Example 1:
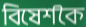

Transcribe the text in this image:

বিষেশকৈ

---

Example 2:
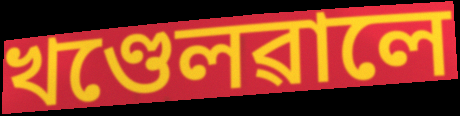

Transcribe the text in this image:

খণ্ডেলৱালে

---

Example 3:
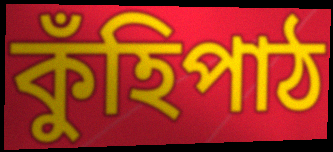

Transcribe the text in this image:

কুঁহিপাঠ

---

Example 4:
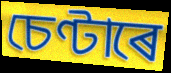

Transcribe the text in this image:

চেণ্টাৰে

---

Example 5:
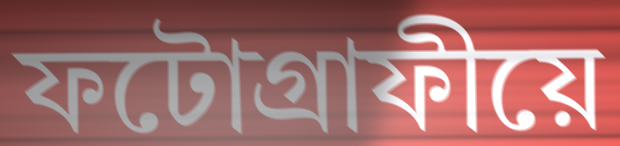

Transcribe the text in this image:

ফটোগ্ৰাফীয়ে